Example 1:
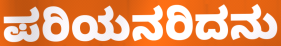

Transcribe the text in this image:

ಪರಿಯನರಿದನು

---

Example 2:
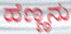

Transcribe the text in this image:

ಹೆಣ್ಣನು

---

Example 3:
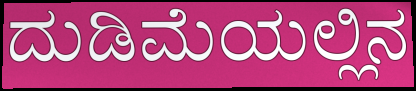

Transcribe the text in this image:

ದುಡಿಮೆಯಲ್ಲಿನ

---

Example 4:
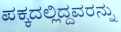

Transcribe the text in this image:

ಪಕ್ಕದಲ್ಲಿದ್ದವರನ್ನು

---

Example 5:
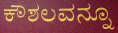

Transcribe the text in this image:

ಕೌಶಲವನ್ನೂ